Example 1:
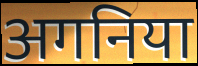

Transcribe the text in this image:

अगनिया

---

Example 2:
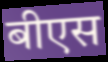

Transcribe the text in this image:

बीएस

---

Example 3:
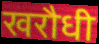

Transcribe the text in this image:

खरौधी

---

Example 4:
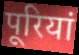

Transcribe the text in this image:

पूरियां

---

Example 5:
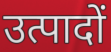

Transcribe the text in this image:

उत्पादों